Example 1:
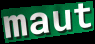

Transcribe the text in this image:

maut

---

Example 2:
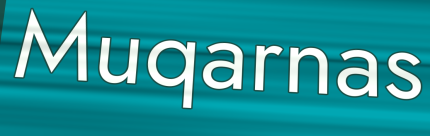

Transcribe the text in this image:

Muqarnas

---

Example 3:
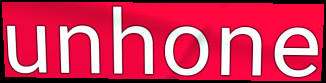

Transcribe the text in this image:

unhone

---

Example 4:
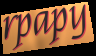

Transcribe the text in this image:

rpapy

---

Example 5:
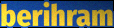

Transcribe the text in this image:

berihram